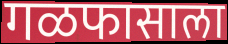
गळफासाला